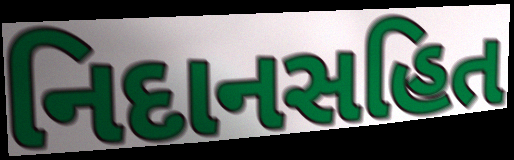
નિદાનસહિત